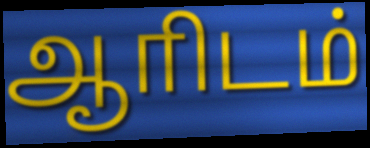
ஆரிடம்